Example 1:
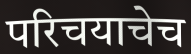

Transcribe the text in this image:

परिचयाचेच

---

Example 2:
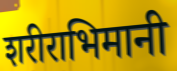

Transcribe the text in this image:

शरीराभिमानी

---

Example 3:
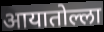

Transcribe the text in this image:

आयातोल्ला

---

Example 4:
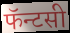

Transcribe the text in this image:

फॅन्टसी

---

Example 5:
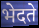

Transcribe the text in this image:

भेदते